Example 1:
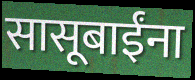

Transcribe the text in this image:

सासूबाईंना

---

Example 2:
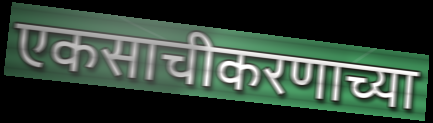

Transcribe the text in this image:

एकसाचीकरणाच्या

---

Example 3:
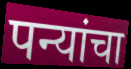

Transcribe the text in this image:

पन्यांचा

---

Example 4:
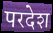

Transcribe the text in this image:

परदेश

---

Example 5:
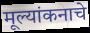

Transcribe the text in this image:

मूल्यांकनाचे